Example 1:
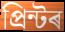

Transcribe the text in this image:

প্ৰিন্টৰ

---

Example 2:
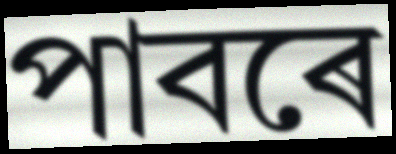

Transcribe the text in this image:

পাবৰে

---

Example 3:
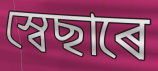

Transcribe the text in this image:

স্বেছাৰে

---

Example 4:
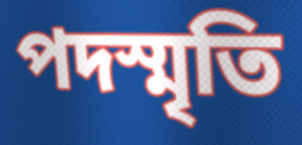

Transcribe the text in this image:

পদস্মৃতি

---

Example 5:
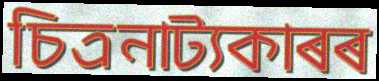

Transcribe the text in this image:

চিত্ৰনাট্যকাৰৰ